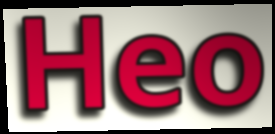
Heo